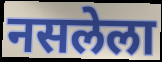
नसलेला